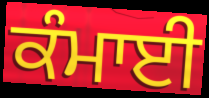
ਕੰਮਾਈ